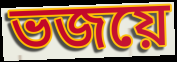
ভজয়ে